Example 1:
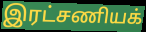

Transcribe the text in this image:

இரட்சணியக்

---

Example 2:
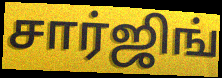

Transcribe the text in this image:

சார்ஜிங்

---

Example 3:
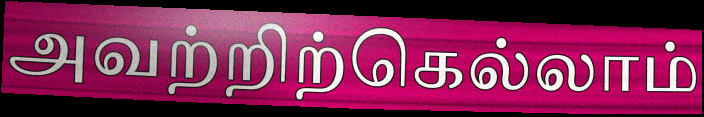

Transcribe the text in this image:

அவற்றிற்கெல்லாம்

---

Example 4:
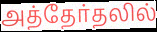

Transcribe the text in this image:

அத்தேர்தலில்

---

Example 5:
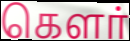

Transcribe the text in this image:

கௌர்